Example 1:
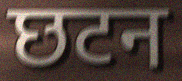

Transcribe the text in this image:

छटन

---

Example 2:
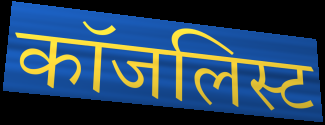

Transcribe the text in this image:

कॉजलिस्ट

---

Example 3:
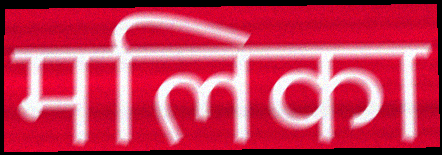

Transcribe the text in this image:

मलिका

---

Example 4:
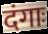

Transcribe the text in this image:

दंगाः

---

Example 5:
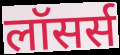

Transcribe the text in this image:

लॉसर्स